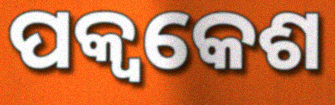
ପକ୍ଵକେଶ